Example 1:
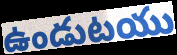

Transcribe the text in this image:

ఉండుటయు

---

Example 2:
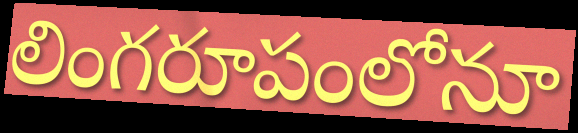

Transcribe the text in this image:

లింగరూపంలోనూ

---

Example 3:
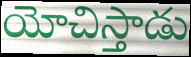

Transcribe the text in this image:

యోచిస్తాడు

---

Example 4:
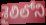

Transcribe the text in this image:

శైలిలోని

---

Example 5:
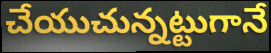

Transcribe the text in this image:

చేయుచున్నట్టుగానే